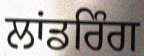
ਲਾਂਡਰਿੰਗ